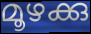
മൂഴക്കു